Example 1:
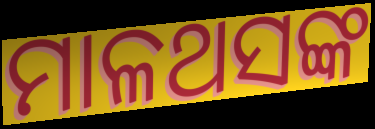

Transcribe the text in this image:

ମାଳଥସଙ୍କ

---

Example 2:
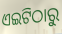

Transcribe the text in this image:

ଏଇଟିଠାରୁ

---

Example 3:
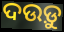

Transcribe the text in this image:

ଦଉଡ଼ୁ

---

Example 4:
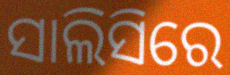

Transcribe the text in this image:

ସାଲିସିରେ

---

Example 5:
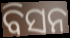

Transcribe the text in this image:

ବିସନ